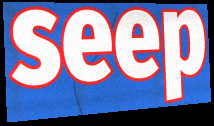
seep